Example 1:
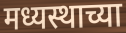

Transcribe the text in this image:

मध्यस्थाच्या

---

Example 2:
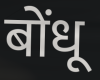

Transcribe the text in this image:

बोंधू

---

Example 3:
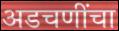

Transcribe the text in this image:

अडचणींचा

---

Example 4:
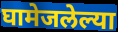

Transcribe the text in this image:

घामेजलेल्या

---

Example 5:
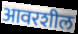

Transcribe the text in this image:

आवरशील